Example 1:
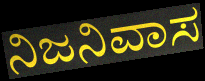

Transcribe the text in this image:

ನಿಜನಿವಾಸ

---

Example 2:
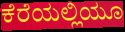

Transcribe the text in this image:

ಕೆರೆಯಲ್ಲಿಯೂ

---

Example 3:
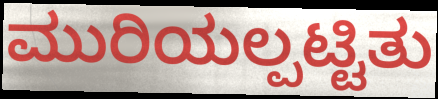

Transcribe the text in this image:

ಮುರಿಯಲ್ಪಟ್ಟಿತು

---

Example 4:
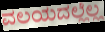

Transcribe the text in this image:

ವಲಯದಲ್ಲೆಲ್ಲ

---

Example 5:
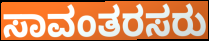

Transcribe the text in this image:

ಸಾವಂತರಸರು